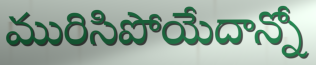
మురిసిపోయేదాన్నో